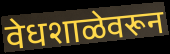
वेधशाळेवरून